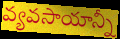
వ్యవసాయాన్నీ